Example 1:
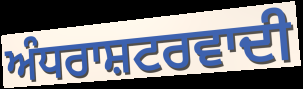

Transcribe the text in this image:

ਅੰਧਰਾਸ਼ਟਰਵਾਦੀ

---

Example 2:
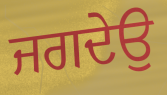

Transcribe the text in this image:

ਜਗਦੇਉ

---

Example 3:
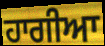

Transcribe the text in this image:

ਹਾਗੀਆ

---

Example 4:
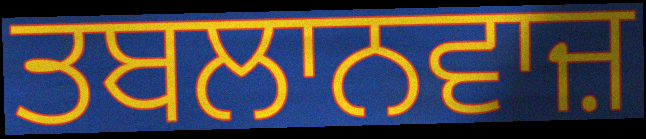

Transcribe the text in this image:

ਤਬਲਾਨਵਾਜ਼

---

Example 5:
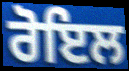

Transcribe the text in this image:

ਰੋਇਲ